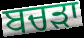
ਬਚੜਾ